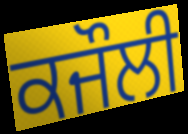
ਕਜੌਲੀ